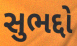
સુભદ્દો